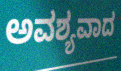
ಅವಶ್ಯವಾದ